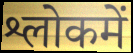
श्लोकमें